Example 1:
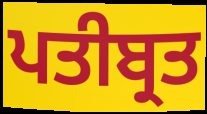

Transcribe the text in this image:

ਪਤੀਬ੍ਰਤ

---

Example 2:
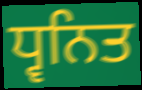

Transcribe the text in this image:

ਧ੍ਵਨਿਤ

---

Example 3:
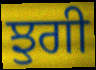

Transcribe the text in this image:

ਝੁਗੀ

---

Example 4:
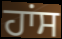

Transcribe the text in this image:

ਹਾਂਸ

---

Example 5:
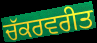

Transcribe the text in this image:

ਚੱਕਰਵਰੀਤ